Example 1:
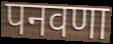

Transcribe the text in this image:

पनवणा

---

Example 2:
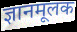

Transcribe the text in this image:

ज्ञानमूलक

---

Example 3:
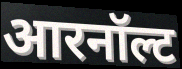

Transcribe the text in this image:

आरनॉल्ट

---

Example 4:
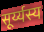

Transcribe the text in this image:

सूर्य्यस्य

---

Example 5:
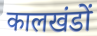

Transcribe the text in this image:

कालखंडों